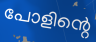
പോളിന്റെ